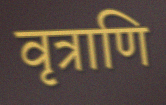
वृत्राणि